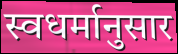
स्वधर्मानुसार